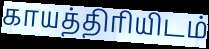
காயத்திரியிடம்